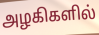
அழகிகளில்